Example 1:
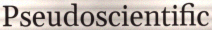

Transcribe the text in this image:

Pseudoscientific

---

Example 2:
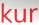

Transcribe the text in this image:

kur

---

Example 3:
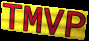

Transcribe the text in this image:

TMVP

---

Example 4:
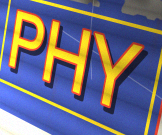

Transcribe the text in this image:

PHY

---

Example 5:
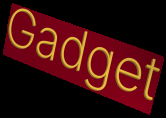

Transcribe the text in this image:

Gadget